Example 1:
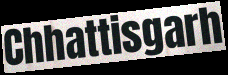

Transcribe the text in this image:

Chhattisgarh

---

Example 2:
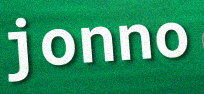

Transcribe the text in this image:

jonno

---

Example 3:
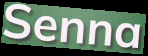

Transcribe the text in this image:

Senna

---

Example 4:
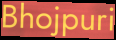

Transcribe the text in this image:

Bhojpuri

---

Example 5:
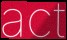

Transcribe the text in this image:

act